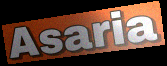
Asaria